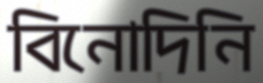
বিনোদিনি